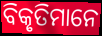
ବିକୃତିମାନେ